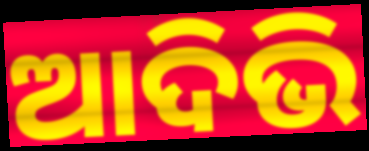
ଆଦିଭି